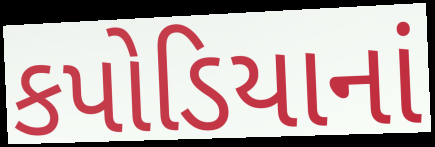
કપોડિયાનાં